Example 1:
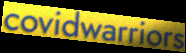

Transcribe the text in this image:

covidwarriors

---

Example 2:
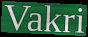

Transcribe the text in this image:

Vakri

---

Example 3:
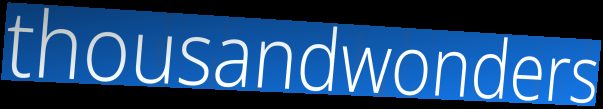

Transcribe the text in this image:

thousandwonders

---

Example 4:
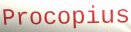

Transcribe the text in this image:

Procopius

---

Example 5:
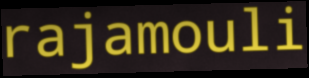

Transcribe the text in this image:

rajamouli